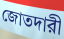
জোতদারী